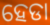
ହେଡା